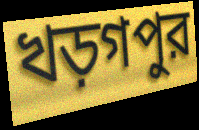
খড়গপুর